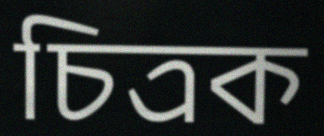
চিত্ৰক